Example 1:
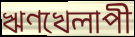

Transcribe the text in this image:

ঋণখেলাপী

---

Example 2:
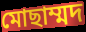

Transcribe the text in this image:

মোছাম্মদ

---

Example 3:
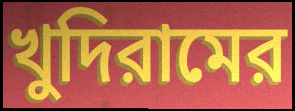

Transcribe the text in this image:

খুদিরামের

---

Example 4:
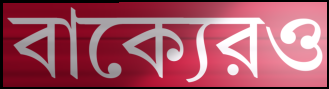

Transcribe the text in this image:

বাক্যেরও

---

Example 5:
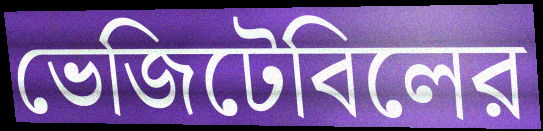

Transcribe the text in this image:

ভেজিটেবিলের